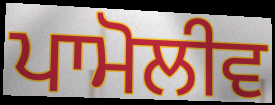
ਪਾਮੋਲੀਵ